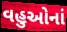
વહુઓનાં